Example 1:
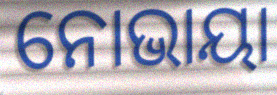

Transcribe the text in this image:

ନୋଭାୟା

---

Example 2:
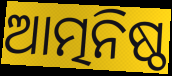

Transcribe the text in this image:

ଆତ୍ମନିଷ୍ଠ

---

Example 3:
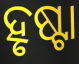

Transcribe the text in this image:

ହୃଷ୍ଟା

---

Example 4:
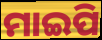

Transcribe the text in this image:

ମାଇପି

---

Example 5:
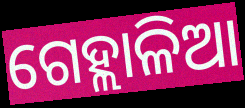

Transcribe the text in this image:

ଗେହ୍ଲାଳିଆ